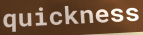
quickness